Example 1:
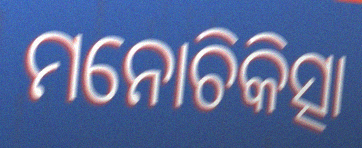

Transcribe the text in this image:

ମନୋଚିକିତ୍ସା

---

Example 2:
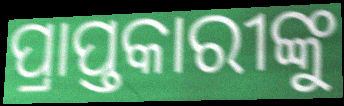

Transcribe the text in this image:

ପ୍ରାପ୍ତକାରୀଙ୍କୁ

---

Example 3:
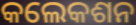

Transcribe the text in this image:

କଲେକଶନ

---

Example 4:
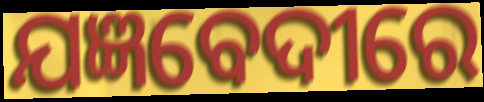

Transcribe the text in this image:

ଯଜ୍ଞବେଦୀରେ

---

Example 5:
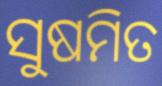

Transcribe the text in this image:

ସୁଷମିତ